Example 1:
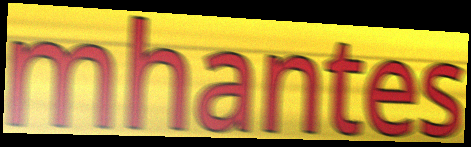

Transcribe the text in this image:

mhantes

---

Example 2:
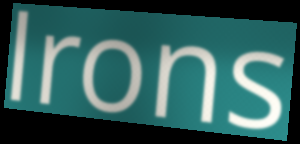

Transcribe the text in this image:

Irons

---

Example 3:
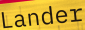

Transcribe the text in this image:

Lander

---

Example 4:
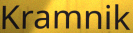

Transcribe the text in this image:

Kramnik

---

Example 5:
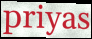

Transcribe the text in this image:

priyas